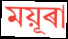
ময়ূৰা